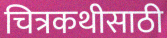
चित्रकथीसाठी